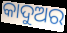
କାଦୁଅର